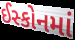
ઈસ્કોનમાં